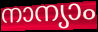
നാന്യാം